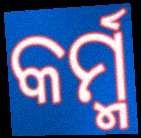
କର୍ମ୍ମ